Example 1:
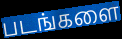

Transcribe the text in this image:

படங்களை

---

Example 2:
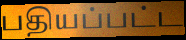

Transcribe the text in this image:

பதியப்பட்ட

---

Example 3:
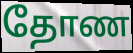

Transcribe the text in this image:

தோண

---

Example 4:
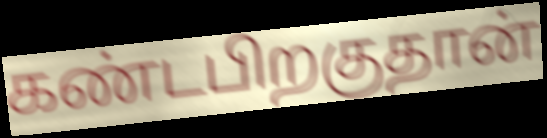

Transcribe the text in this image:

கண்டபிறகுதான்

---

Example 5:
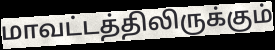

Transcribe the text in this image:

மாவட்டத்திலிருக்கும்